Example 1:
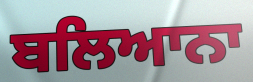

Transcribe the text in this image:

ਬਲਿਆਨਾ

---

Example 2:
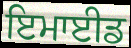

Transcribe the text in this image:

ਇਮਾਈਡ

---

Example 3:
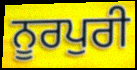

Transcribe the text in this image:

ਨੂਰਪੁਰੀ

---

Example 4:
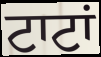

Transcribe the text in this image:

ਟਾਟਾਂ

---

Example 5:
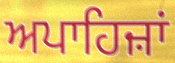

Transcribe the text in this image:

ਅਪਾਹਿਜ਼ਾਂ